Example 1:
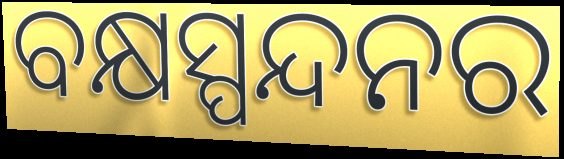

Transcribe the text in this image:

ବକ୍ଷସ୍ପନ୍ଦନର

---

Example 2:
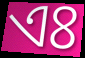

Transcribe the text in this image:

ଏଃ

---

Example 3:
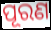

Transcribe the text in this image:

ପୂରଣ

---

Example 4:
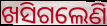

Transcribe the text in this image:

ଖସିଗଲେଣି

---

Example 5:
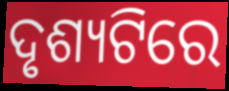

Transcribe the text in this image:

ଦୃଶ୍ୟଟିରେ